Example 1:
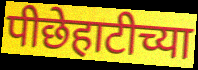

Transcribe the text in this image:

पीछेहाटीच्या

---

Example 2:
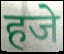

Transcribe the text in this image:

हजे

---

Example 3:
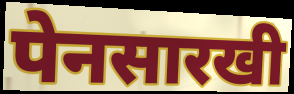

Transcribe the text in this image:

पेनसारखी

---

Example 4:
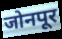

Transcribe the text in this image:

जोनपूर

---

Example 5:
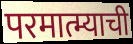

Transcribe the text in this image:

परमात्म्याची